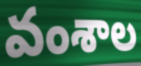
వంశాల